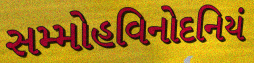
સમ્મોહવિનોદનિયં